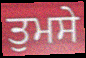
ਤੁਮਸੇ